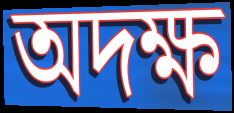
অদক্ষ